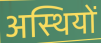
अस्थियों